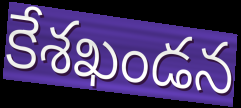
కేశఖండన